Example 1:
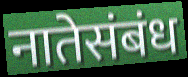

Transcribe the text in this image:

नातेसंबंध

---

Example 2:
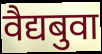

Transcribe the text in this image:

वैद्यबुवा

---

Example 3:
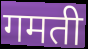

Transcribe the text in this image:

गमती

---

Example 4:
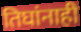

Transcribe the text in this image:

तिघांनाही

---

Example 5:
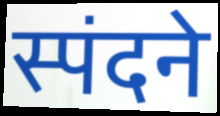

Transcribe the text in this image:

स्पंदने